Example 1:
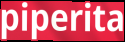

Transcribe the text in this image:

piperita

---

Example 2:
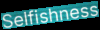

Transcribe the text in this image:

Selfishness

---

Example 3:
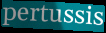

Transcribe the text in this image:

pertussis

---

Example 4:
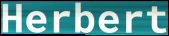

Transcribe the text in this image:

Herbert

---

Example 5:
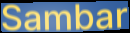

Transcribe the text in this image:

Sambar